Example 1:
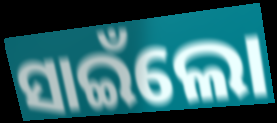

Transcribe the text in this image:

ସାଇଁଲୋ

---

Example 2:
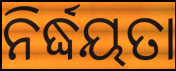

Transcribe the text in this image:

ନିର୍ଦ୍ଧୟତା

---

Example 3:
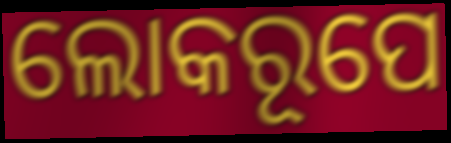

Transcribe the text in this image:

ଲୋକରୂପେ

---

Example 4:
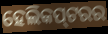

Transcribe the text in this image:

ହେଲିକପ୍‌ଟରର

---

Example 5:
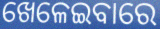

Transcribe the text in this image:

ଖେଳେଇବାରେ